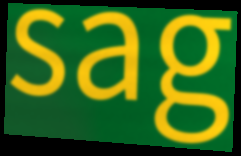
sag